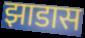
झाडास